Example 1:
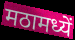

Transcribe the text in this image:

मठामध्यें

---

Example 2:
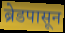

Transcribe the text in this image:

ब्रेडपासून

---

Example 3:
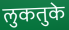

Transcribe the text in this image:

लुकतुके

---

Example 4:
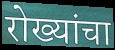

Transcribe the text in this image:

रोख्यांचा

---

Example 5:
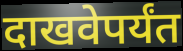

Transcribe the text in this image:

दाखवेपर्यंत